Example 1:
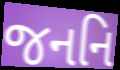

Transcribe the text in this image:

જનનિ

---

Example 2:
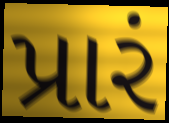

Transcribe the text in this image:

પ્રારં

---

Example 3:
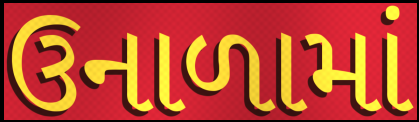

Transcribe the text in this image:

ઉનાળામાં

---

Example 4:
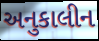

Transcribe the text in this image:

અનુકાલીન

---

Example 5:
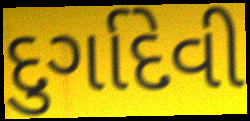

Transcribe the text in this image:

દુર્ગાદેવી